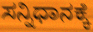
ಸನ್ನಿಧಾನಕ್ಕೆ